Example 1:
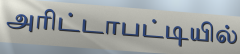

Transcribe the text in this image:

அரிட்டாபட்டியில்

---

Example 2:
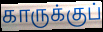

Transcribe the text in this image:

காருக்குப்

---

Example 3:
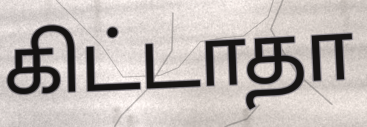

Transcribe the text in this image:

கிட்டாதா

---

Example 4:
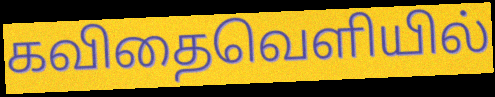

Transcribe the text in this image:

கவிதைவெளியில்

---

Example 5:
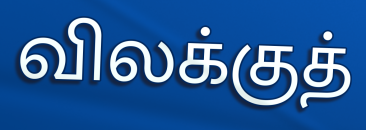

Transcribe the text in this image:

விலக்குத்